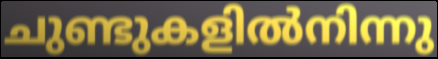
ചുണ്ടുകളിൽനിന്നു